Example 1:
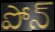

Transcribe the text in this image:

పోన్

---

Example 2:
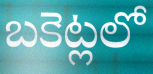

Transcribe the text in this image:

బకెట్లలో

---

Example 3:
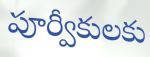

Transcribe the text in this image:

పూర్వీకులకు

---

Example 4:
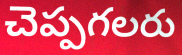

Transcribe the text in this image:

చెప్పగలరు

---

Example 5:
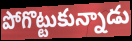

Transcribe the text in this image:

పోగొట్టుకున్నాడు